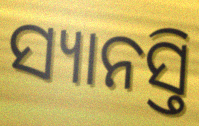
ସ୍ୟାନସ୍ତି